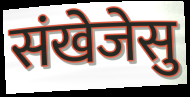
संखेजेसु